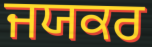
ਜਯਕਰ